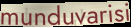
munduvarisi